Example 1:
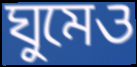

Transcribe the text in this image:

ঘুমেও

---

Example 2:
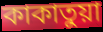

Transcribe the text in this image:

কাকাতুয়া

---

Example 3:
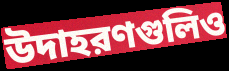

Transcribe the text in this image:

উদাহরণগুলিও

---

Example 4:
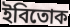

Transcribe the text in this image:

ইবিতোক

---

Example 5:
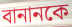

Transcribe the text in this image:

বানানকে